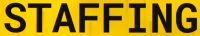
STAFFING